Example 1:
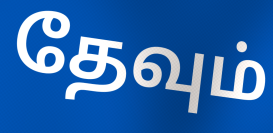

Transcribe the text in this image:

தேவும்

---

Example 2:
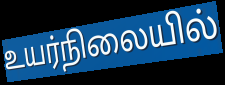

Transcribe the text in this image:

உயர்நிலையில்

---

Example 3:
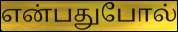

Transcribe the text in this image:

என்பதுபோல்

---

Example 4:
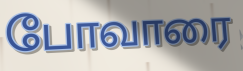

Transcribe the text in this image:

போவாரை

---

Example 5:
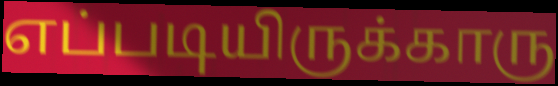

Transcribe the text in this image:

எப்படியிருக்காரு